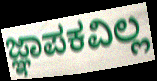
ಜ್ಞಾಪಕವಿಲ್ಲ